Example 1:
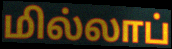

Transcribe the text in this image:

மில்லாப்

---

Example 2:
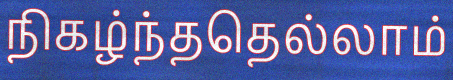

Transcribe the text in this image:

நிகழ்ந்ததெல்லாம்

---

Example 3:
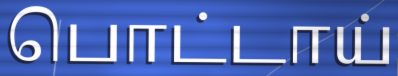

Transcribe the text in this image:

பொட்டாய்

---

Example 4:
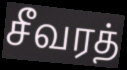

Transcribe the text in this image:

சீவரத்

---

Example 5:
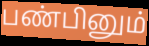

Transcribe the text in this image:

பண்பினும்